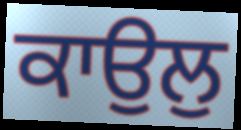
ਕਾਉਲੁ